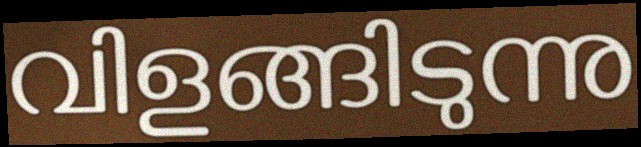
വിളങ്ങിടുന്നു